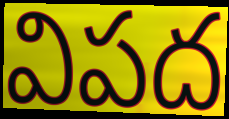
విపద